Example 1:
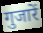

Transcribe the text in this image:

गुजारें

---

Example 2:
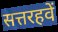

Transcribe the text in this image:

सत्तरहवें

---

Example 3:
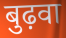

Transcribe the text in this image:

बुढ़वा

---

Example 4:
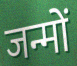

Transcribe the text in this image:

जन्मों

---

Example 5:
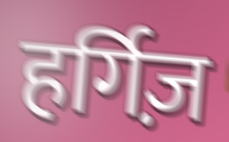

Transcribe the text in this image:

हर्गिज़